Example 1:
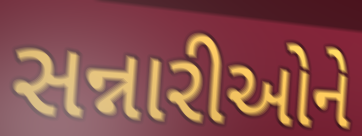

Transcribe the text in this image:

સન્નારીઓને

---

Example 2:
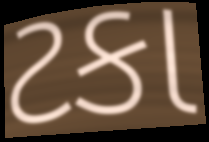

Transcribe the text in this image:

ટકા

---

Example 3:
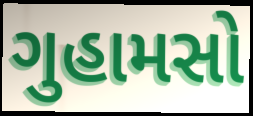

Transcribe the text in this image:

ગુહામસો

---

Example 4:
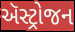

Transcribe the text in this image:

ઍસ્ટ્રોજન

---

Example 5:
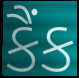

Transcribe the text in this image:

કૈંક